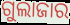
ଗୁଲାଜାର